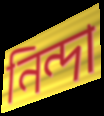
নিন্দা